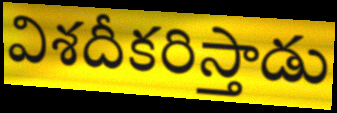
విశదీకరిస్తాడు